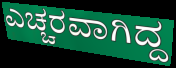
ಎಚ್ಚರವಾಗಿದ್ದ